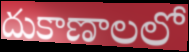
దుకాణాలలో